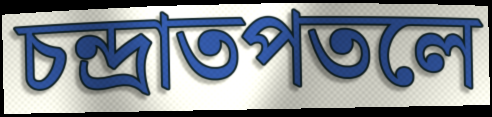
চন্দ্রাতপতলে